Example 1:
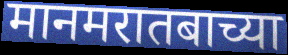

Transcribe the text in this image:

मानमरातबाच्या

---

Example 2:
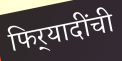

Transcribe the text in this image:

फिर्यादींची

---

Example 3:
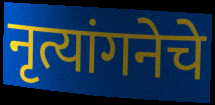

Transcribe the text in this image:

नृत्यांगनेचे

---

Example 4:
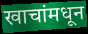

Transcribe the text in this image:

खाचांमधून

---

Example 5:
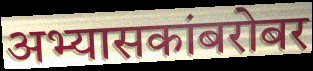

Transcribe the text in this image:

अभ्यासकांबरोबर